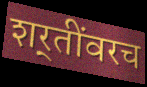
शर्तींवरच